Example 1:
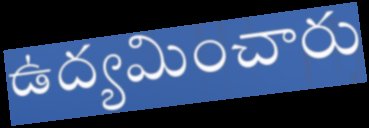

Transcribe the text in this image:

ఉద్యమించారు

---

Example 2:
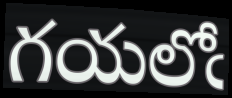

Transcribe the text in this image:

గయలోఁ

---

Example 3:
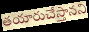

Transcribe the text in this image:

తయారుచేస్తానని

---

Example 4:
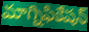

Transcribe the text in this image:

మాగ్నిఫికేషన్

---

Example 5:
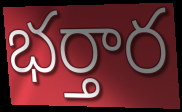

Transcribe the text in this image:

భర్తార